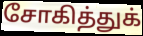
சோகித்துக்